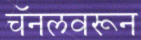
चॅनलवरून